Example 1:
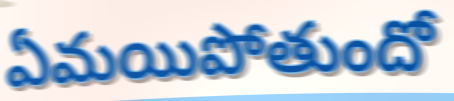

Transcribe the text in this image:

ఏమయిపోతుందో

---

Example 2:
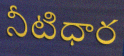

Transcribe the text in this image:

నీటిధార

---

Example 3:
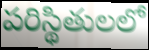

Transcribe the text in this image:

పరిస్థితులలో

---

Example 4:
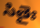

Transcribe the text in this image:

సితైః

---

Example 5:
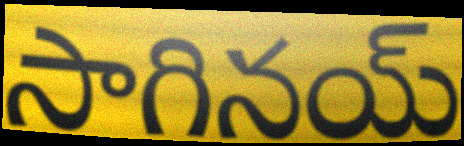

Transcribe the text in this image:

సాగినయ్